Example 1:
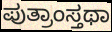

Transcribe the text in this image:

ಪುತ್ರಾಂಸ್ತಥಾ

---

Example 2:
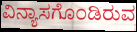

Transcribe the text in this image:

ವಿನ್ಯಾಸಗೊಂಡಿರುವ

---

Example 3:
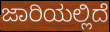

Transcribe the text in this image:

ಜಾರಿಯಲ್ಲಿದೆ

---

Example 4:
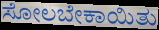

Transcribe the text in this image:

ಸೋಲಬೇಕಾಯಿತು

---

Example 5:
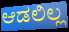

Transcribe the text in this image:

ಆಡಲಿಲ್ಲ